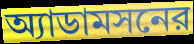
অ্যাডামসনের